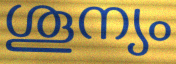
ശൂന്യം